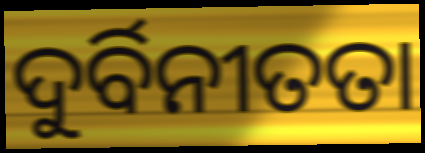
ଦୁର୍ବିନୀତତା